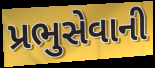
પ્રભુસેવાની